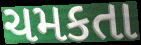
ચમકતા